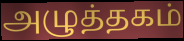
அழுத்தகம்